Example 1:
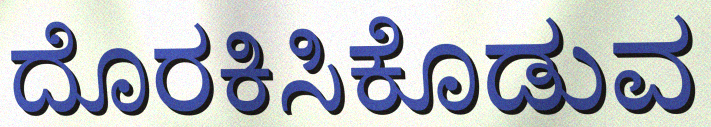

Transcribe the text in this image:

ದೊರಕಿಸಿಕೊಡುವ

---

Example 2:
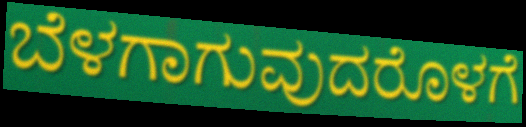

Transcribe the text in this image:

ಬೆಳಗಾಗುವುದರೊಳಗೆ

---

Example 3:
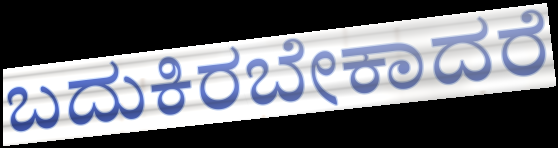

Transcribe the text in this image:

ಬದುಕಿರಬೇಕಾದರೆ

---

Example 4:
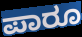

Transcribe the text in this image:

ಪಾರೂ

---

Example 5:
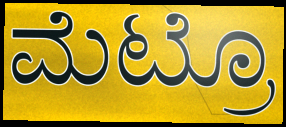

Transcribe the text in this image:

ಮೆಟ್ರೊ